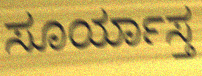
ಸೂರ್ಯಾಸ್ತ